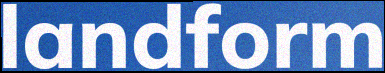
landform